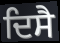
ਦਿਸੈ